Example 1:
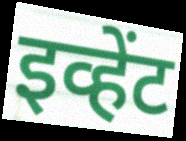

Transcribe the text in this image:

इव्हेंट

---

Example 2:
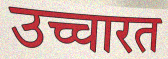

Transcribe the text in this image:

उच्चारत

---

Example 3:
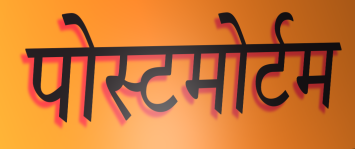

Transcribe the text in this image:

पोस्टमोर्टम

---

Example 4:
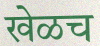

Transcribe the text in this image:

खेळच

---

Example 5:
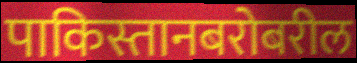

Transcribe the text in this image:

पाकिस्तानबरोबरील